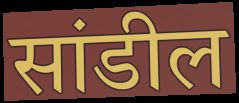
सांडील